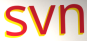
svn